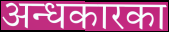
अन्धकारका